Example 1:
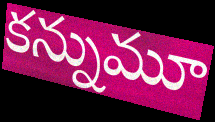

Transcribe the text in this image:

కన్నుమూ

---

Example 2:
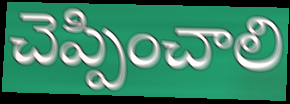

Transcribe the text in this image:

చెప్పించాలి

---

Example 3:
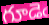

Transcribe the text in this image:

గూడెఁ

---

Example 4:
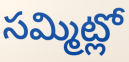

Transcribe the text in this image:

సమ్మిట్లో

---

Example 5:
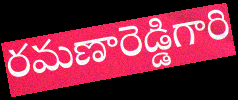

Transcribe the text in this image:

రమణారెడ్డిగారి